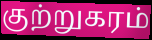
குற்றுகரம்